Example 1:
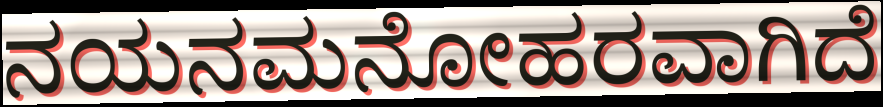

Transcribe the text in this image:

ನಯನಮನೋಹರವಾಗಿದೆ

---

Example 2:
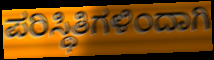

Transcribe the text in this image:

ಪರಿಸ್ಥಿತಿಗಳಿಂದಾಗಿ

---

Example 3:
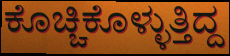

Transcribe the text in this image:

ಕೊಚ್ಚಿಕೊಳ್ಳುತ್ತಿದ್ದ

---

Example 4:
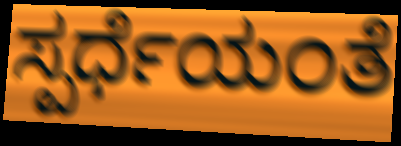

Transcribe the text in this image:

ಸ್ಪರ್ಧೆಯಂತೆ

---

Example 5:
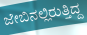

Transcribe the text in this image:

ಜೇಬಿನಲ್ಲಿರುತ್ತಿದ್ದ